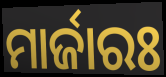
ମାର୍ଜାରଃ